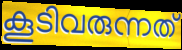
കൂടിവരുന്നത്